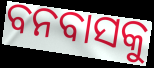
ବନବାସକୁ